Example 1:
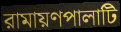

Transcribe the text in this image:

রামায়ণপালাটি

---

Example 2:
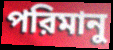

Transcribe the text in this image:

পরিমানু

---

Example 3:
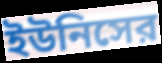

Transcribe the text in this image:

ইউনিসের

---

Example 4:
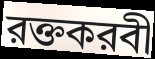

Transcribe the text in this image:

রক্তকরবী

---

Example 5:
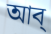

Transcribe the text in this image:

আব্